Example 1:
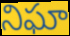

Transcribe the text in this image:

నిఘా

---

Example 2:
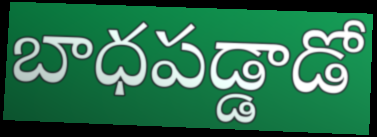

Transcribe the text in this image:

బాధపడ్డాడో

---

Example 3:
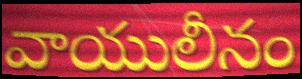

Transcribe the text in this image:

వాయులీనం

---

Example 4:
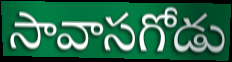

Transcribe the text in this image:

సావాసగోడు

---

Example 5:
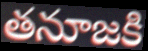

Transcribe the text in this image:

తనూజకి